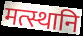
मत्स्थानि